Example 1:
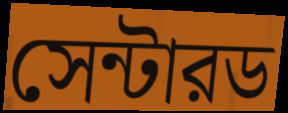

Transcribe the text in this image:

সেন্টারড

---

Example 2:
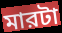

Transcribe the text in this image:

মারটা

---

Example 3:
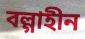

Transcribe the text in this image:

বল্গাহীন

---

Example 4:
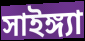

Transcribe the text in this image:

সাইঙ্গ্যা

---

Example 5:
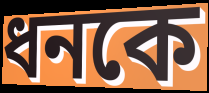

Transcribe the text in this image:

ধনকে